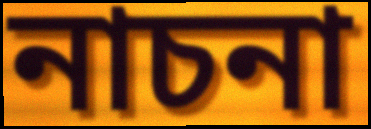
নাচনা